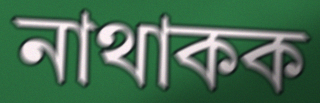
নাথাকক